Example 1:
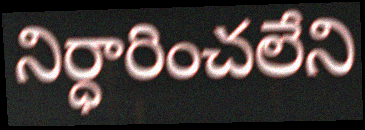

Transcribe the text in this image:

నిర్ధారించలేని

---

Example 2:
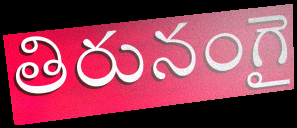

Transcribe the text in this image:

తిరునంగై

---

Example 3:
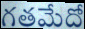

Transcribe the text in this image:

గతమేదో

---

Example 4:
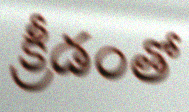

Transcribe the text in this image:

క్రీడంతో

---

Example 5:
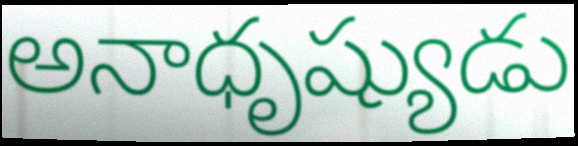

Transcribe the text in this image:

అనాధృష్యుడు